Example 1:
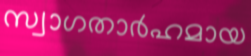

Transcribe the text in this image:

സ്വാഗതാർഹമായ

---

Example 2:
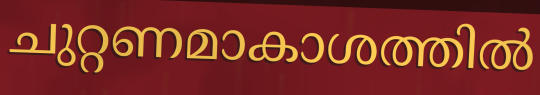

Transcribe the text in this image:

ചുറ്റണമാകാശത്തിൽ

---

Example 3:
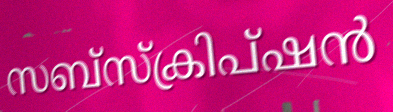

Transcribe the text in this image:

സബ്സ്ക്രിപ്ഷൻ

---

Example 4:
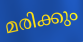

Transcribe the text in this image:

മരിക്കും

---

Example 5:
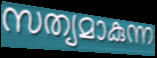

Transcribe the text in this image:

സത്യമാകുന്ന